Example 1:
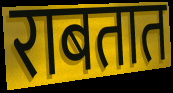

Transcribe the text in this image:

राबतात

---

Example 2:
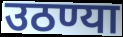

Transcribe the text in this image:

उठण्या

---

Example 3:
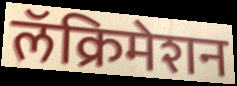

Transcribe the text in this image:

लॅक्रिमेशन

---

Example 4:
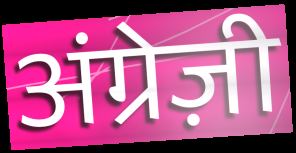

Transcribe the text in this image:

अंग्रेज़ी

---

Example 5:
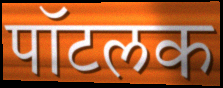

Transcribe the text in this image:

पॉटलक